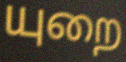
யுறை